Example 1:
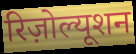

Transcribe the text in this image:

रिज़ोल्यूशन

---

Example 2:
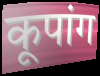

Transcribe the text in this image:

कूपांग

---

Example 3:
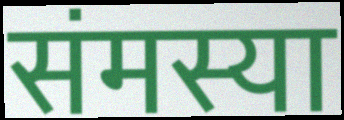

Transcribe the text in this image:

संमस्या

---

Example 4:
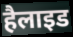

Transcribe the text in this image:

हैलाइड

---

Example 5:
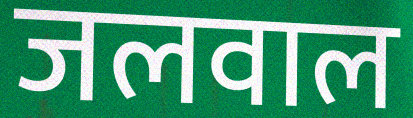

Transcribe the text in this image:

जलवाल